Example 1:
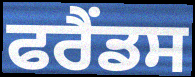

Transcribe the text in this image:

ਫਰੈਂਡਸ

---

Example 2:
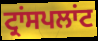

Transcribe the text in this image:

ਟ੍ਰਾਂਸਪਲਾਂਟ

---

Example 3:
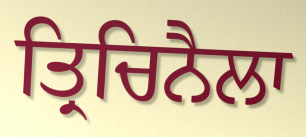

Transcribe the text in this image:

ਤ੍ਰਿਚਿਨੈਲਾ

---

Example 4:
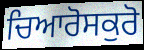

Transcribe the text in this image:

ਚਿਆਰੋਸਕੁਰੋ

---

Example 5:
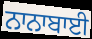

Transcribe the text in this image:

ਨਾਨਾਬਾਈ